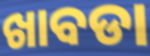
ଖାବଡା